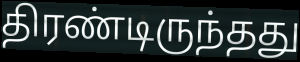
திரண்டிருந்தது